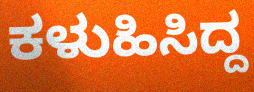
ಕಳುಹಿಸಿದ್ದ